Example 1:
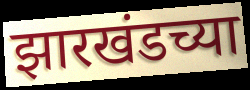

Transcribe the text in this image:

झारखंडच्या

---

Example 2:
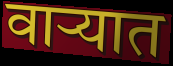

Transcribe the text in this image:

वाऱ्यात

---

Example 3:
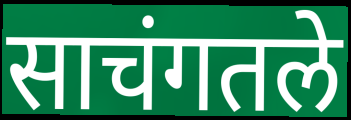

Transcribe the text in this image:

साचंगतले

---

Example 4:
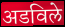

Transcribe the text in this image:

अडविले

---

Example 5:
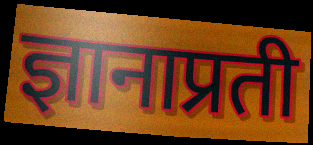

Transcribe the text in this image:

ज्ञानाप्रती